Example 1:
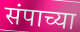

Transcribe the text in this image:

संपाच्या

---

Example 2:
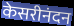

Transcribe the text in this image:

केसरीनंदन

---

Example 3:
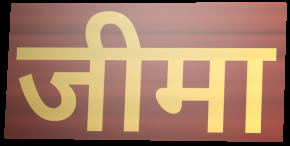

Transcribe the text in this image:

जीमा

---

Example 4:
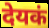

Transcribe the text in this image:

देयकं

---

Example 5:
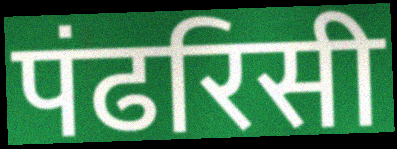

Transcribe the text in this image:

पंढरिसी